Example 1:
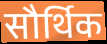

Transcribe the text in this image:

सौर्थिक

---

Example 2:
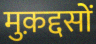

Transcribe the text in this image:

मुक़द्दसों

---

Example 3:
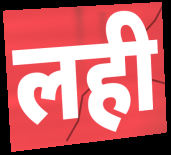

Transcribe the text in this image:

लही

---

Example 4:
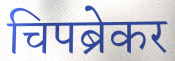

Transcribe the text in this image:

चिपब्रेकर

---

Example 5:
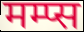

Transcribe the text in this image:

मम्प्स